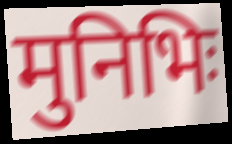
मुनिभिः